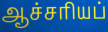
ஆச்சரியப்